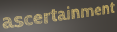
ascertainment